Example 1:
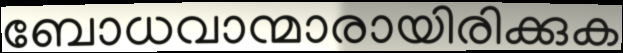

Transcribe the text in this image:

ബോധവാന്മാരായിരിക്കുക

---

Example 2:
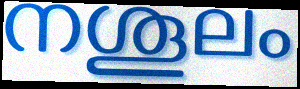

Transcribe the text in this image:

നശൂലം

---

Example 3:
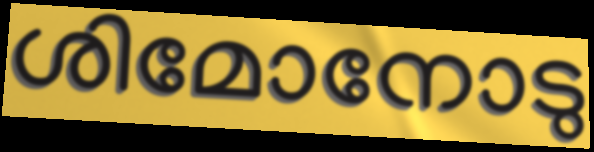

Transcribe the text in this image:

ശിമോനോടു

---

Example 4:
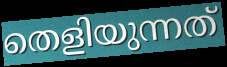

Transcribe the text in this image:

തെളിയുന്നത്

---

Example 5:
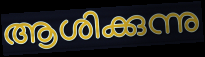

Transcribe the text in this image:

ആശിക്കുന്നു